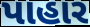
પાહાર